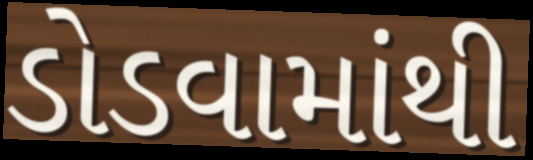
ડોડવામાંથી